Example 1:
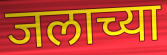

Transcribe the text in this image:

जलाच्या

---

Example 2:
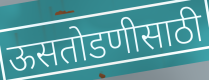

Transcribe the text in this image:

ऊसतोडणीसाठी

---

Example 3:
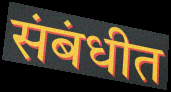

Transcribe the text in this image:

संबंधीत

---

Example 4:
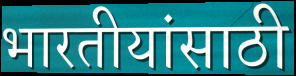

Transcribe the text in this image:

भारतीयांसाठी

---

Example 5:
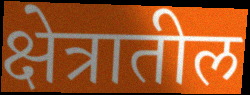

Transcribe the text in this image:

क्षेत्रातील